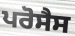
ਪਰੋਸੈਸ